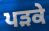
ਪੜਕੇ